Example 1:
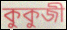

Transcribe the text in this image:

কুকুজী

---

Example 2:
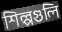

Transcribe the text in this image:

শিল্পগুলি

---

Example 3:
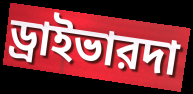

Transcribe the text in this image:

ড্রাইভারদা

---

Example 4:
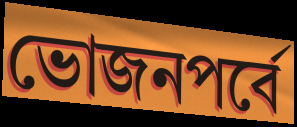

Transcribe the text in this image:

ভোজনপর্বে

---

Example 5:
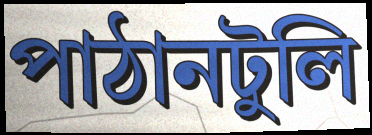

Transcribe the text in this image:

পাঠানটুলি